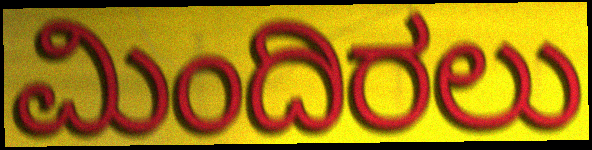
ಮಿಂದಿರಲು